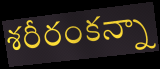
శరీరంకన్నా